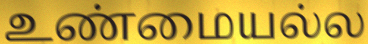
உண்மையல்ல